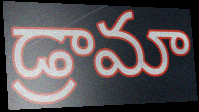
డ్రామా